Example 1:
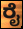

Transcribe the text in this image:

ರೈ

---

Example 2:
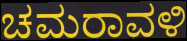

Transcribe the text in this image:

ಚಮರಾವಳಿ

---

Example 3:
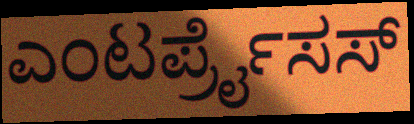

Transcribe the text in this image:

ಎಂಟರ್ಪ್ರೈಸಸ್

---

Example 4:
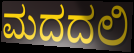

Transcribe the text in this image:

ಮದದಲಿ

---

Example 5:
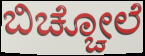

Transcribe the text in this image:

ಬಿಚ್ಚೋಲೆ